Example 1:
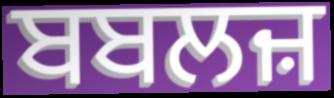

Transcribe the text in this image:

ਬਬਲਜ਼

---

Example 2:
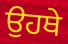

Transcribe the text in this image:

ਉਹਥੇ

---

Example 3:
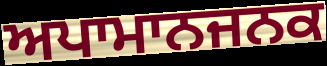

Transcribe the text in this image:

ਅਪਾਮਾਨਜਨਕ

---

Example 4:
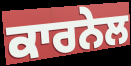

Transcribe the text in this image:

ਕਾਰਨੇਲ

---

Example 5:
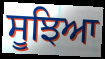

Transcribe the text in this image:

ਸੂਝਿਆ